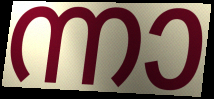
ന്നാ